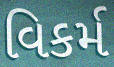
વિકર્મ